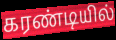
கரண்டியில்